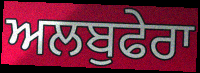
ਅਲਬੁਫੇਰਾ